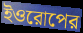
ইওরোপের